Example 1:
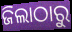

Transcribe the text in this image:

ଜିଲାଠାରୁ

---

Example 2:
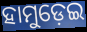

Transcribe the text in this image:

ହାମୁଡ଼େଇ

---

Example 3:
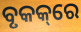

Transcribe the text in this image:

ବୃକକ୍‌ରେ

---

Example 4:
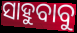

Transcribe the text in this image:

ସାହୁବାବୁ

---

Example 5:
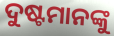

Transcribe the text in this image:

ଦୁଷ୍ଟମାନଙ୍କୁ